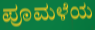
ಪೂಮಳೆಯ